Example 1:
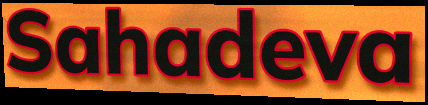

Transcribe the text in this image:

Sahadeva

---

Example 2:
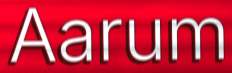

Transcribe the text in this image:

Aarum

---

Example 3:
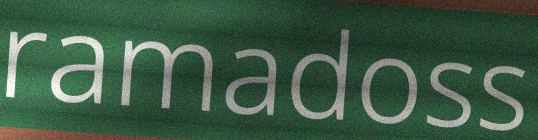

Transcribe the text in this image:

ramadoss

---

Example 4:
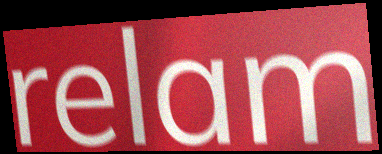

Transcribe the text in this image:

relam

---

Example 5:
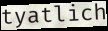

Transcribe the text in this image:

tyatlich